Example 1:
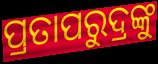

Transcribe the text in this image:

ପ୍ରତାପରୁଦ୍ରଙ୍କୁ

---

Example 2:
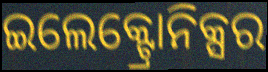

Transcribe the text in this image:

ଇଲେକ୍ଟ୍ରୋନିକ୍ସର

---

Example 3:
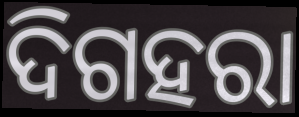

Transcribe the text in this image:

ଦିଗହରା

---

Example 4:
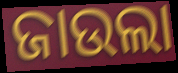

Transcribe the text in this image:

ଜାଉଲା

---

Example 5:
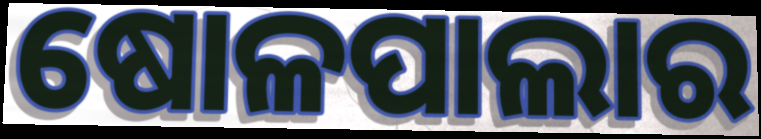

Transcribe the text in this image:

ଷୋଳପାଲାର